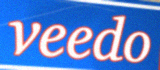
veedo